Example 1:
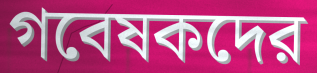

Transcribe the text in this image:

গবেষকদের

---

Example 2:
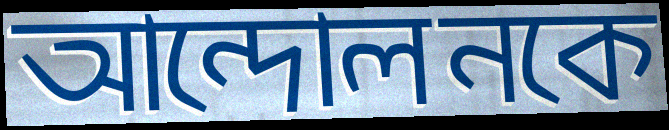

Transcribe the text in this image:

আন্দোলনকে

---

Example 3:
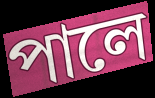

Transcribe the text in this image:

পালে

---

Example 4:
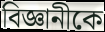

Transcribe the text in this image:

বিজ্ঞানীকে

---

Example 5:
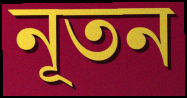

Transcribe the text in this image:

নূতন